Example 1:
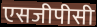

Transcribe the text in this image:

एसजीपीसी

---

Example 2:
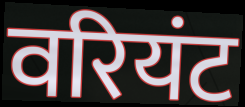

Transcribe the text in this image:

वरियंट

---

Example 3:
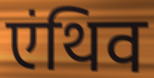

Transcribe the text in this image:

एंथिव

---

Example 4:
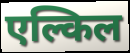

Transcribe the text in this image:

एल्किल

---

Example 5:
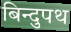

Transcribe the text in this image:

बिन्दुपथ